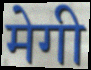
मेगी